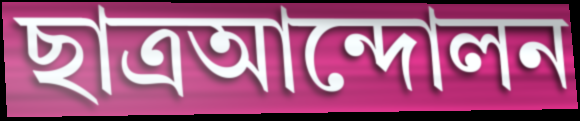
ছাত্রআন্দোলন